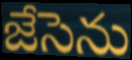
జేసెను